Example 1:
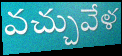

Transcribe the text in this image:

వచ్చువేళ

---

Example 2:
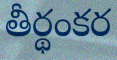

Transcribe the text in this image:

తీర్థంకర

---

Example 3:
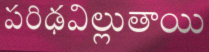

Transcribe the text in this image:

పరిఢవిల్లుతాయి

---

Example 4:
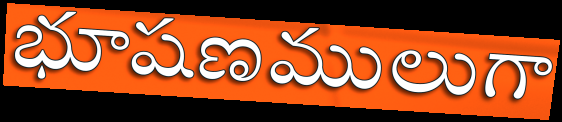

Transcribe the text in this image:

భూషణములుగా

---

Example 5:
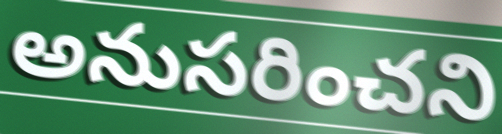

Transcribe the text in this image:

అనుసరించని